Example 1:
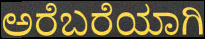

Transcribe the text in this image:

ಅರೆಬರೆಯಾಗಿ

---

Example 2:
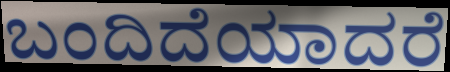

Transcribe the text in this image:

ಬಂದಿದೆಯಾದರೆ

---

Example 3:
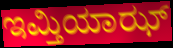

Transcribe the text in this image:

ಇಮ್ತಿಯಾಝ್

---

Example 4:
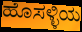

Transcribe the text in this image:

ಹೊಸಳ್ಳಿಯ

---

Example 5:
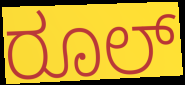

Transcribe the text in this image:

ರೂಲ್